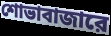
শোভাবাজারে